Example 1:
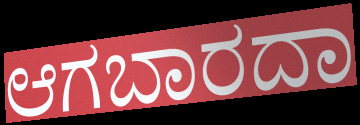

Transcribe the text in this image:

ಆಗಬಾರದಾ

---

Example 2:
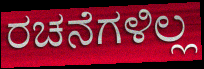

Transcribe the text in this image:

ರಚನೆಗಳಿಲ್ಲ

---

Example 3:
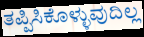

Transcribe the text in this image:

ತಪ್ಪಿಸಿಕೊಳ್ಳುವುದಿಲ್ಲ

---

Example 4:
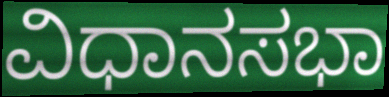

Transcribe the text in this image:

ವಿಧಾನಸಭಾ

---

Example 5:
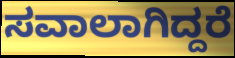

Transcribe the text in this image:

ಸವಾಲಾಗಿದ್ದರೆ